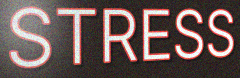
STRESS